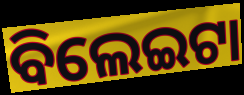
ବିଲେଇଟା